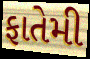
ફાતેમી